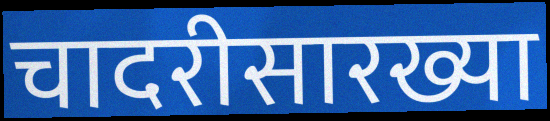
चादरीसारख्या